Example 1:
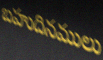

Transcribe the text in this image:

బహుదినములు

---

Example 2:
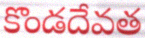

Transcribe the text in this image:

కొండదేవత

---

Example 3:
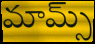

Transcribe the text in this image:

మామ్స్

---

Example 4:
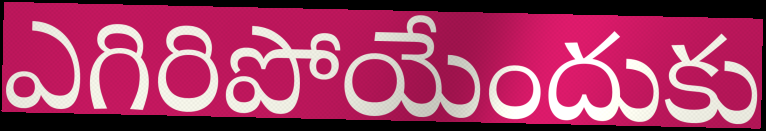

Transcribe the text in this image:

ఎగిరిపోయేందుకు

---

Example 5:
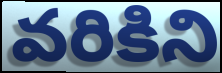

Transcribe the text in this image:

వరికిని